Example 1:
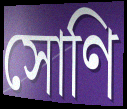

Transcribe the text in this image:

সোণি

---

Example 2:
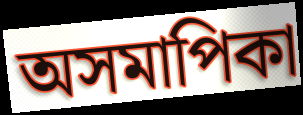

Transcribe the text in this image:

অসমাপিকা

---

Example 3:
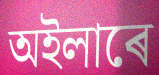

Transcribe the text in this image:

অইলাৰে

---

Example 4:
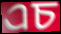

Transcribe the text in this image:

এচ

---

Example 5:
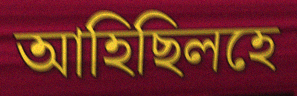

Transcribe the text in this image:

আহিছিলহে